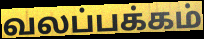
வலப்பக்கம்